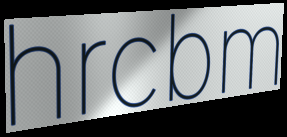
hrcbm